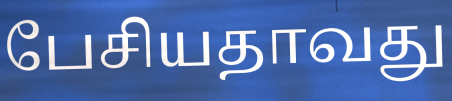
பேசியதாவது